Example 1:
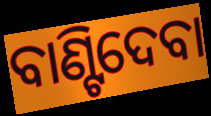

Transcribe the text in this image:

ବାଣ୍ଟିଦେବା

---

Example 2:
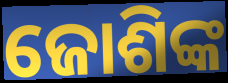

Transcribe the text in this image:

ଜୋଶିଙ୍କ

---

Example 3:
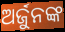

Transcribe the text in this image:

ଅର୍ଜୁନଙ୍କ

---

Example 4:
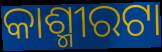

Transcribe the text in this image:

କାଶ୍ମୀରଟା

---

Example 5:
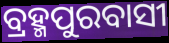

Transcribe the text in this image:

ବ୍ରହ୍ମପୁରବାସୀ